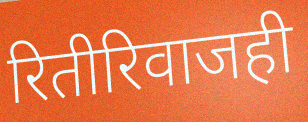
रितीरिवाजही